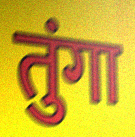
तुंगा